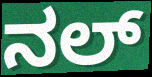
ನಲ್